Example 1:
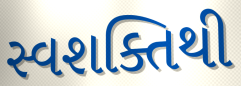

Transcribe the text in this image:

સ્વશક્તિથી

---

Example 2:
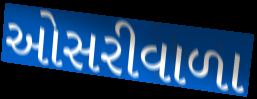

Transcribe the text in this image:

ઓસરીવાળા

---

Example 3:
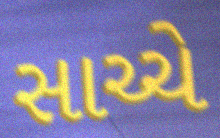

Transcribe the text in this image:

સાચ્ચે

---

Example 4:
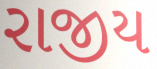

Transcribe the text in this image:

રાજીય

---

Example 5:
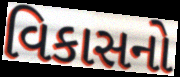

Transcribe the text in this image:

વિકાસનો